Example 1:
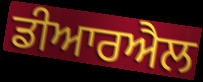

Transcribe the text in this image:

ਡੀਆਰਐਲ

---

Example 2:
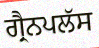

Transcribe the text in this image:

ਗ੍ਰੈਨਪਲੱਸ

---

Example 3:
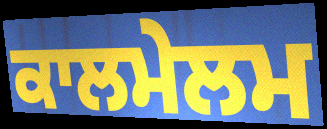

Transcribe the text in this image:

ਕਾਲਮੇਲਮ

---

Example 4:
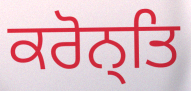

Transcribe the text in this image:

ਕਰੋਨ੍ਤਿ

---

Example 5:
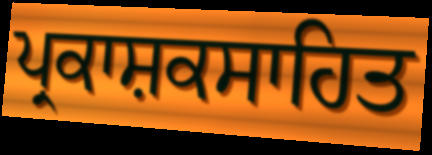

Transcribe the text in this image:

ਪ੍ਰਕਾਸ਼ਕਸਾਹਿਤ